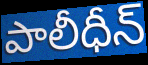
పాలీధీన్